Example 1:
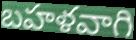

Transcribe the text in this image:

బహళవాగి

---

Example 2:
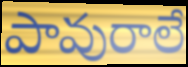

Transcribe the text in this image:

పావురాలే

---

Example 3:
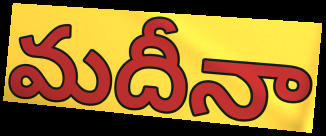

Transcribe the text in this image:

మదీనా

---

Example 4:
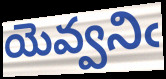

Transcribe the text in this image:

యెవ్వనిఁ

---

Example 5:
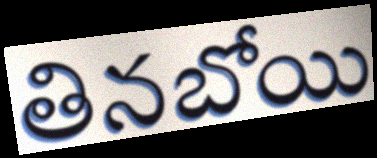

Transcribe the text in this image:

తినబోయి